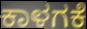
ಕಾಳಗಕೆ